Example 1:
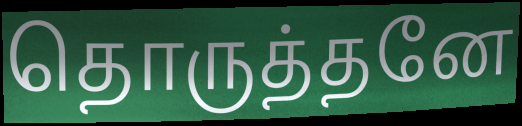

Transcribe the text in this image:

தொருத்தனே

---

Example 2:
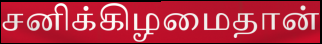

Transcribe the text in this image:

சனிக்கிழமைதான்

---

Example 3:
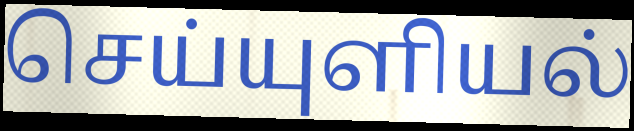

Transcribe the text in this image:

செய்யுளியல்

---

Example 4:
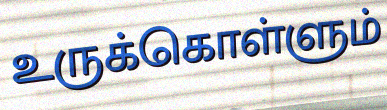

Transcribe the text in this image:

உருக்கொள்ளும்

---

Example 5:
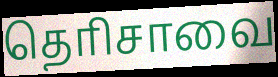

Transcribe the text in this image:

தெரிசாவை